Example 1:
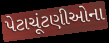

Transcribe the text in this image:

પેટાચૂંટણીઓના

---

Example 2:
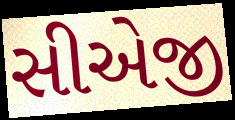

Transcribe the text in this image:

સીએજી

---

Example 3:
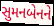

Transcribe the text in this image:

સુમનબેનને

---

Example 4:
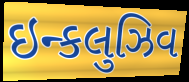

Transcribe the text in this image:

ઇન્કલુઝિવ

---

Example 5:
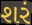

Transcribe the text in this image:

શરં